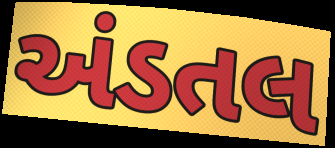
અંડતલ